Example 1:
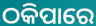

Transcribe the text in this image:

ଠକିପାରେ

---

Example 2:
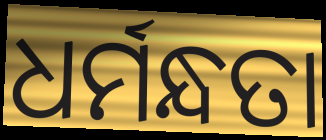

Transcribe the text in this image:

ଧର୍ମନ୍ଧତା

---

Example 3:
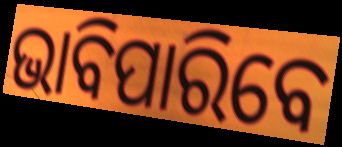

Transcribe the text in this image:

ଭାବିପାରିବେ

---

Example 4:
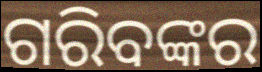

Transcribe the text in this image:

ଗରିବଙ୍କର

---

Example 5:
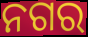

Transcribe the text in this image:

ନଗର